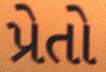
પ્રેતો